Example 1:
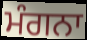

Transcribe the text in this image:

ਮੰਗਨਾ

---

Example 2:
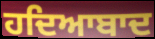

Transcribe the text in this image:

ਹਦਿਆਬਾਦ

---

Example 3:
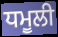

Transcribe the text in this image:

ਧਮੂਲੀ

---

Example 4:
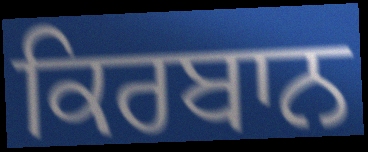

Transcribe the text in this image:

ਕਿਰਬਾਨ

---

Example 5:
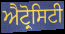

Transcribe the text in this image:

ਐਟ੍ਰੋਸਿਟੀ